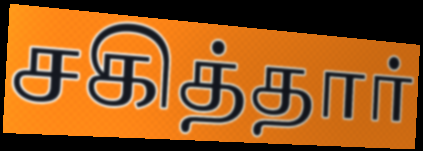
சகித்தார்